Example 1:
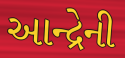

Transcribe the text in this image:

આન્દ્રેની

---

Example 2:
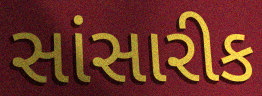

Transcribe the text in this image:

સાંસારીક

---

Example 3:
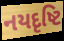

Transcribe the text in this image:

નયદૃષ્ટિ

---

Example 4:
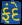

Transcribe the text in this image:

ફંદે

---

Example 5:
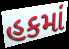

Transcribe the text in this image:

હકમાં